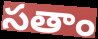
సతాం